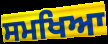
ਸਮਖਿਆ